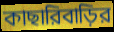
কাছারিবাড়ির